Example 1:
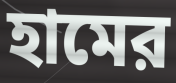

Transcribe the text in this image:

হামের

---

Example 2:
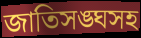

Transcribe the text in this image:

জাতিসঙ্ঘসহ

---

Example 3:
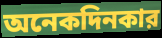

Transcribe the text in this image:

অনেকদিনকার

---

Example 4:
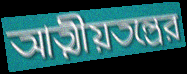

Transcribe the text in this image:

আত্মীয়তন্ত্রের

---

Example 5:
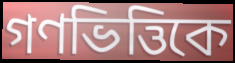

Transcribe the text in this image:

গণভিত্তিকে